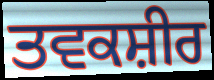
ਤਵਕਸ਼ੀਰ